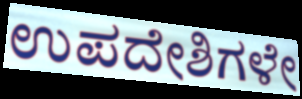
ಉಪದೇಶಿಗಳೇ